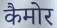
कैमोर